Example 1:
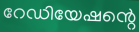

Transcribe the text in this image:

റേഡിയേഷന്റെ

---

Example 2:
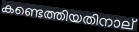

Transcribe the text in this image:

കണ്ടെത്തിയതിനാല്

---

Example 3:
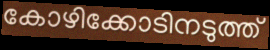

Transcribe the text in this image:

കോഴിക്കോടിനടുത്ത്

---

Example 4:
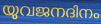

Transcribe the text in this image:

യുവജനദിനം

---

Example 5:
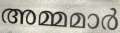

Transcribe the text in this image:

അമ്മമാർ